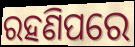
ରହଣିପରେ